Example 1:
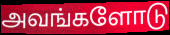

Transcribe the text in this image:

அவங்களோடு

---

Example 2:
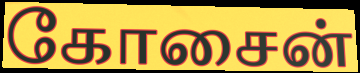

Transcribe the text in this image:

கோசைன்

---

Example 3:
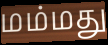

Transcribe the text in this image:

மம்மது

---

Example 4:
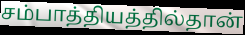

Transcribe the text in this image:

சம்பாத்தியத்தில்தான்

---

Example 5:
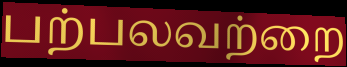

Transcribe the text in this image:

பற்பலவற்றை